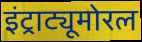
इंट्राट्यूमोरल